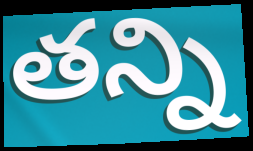
తన్ని